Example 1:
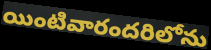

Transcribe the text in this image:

యింటివారందరిలోను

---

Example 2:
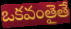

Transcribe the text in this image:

ఒకవంతైతే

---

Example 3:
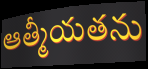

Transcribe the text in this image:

ఆత్మీయతను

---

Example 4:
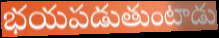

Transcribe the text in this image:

భయపడుతుంటాడు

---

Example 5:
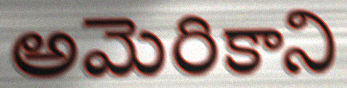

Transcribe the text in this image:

అమెరికాని